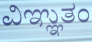
ವಿಞ್ಞುತಂ